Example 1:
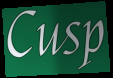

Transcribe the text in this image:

Cusp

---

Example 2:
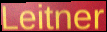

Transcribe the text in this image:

Leitner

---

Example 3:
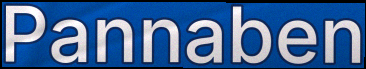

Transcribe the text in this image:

Pannaben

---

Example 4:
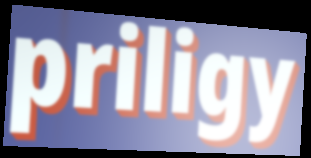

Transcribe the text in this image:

priligy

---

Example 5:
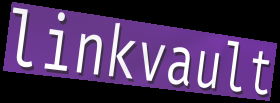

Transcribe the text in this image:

linkvault